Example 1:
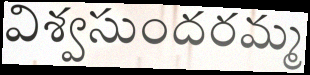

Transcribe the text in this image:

విశ్వసుందరమ్మ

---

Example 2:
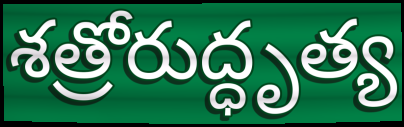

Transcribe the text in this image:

శత్రోరుద్ధృత్య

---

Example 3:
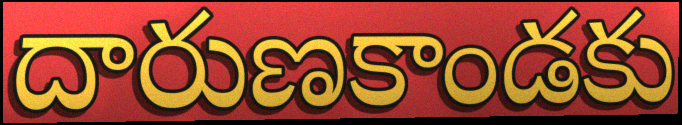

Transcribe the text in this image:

దారుణకాండకు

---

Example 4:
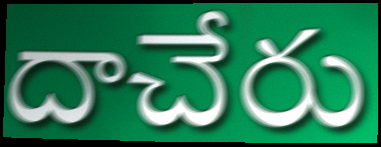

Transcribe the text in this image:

దాచేరు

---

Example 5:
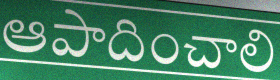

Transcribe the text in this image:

ఆపాదించాలి